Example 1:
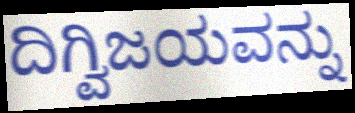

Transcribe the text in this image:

ದಿಗ್ವಿಜಯವನ್ನು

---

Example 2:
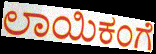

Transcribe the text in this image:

ಲಾಯಿಕಂಗೆ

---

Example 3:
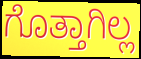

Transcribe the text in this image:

ಗೊತ್ತಾಗಿಲ್ಲ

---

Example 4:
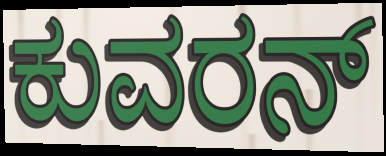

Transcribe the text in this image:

ಕುವರನ್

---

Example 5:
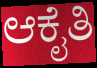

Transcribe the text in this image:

ಆಕೈತಿ